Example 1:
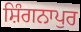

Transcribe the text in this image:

ਸ਼ਿੰਗਨਾਪੁਰ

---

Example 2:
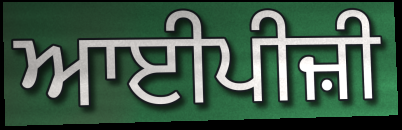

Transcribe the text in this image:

ਆਈਪੀਜ਼ੀ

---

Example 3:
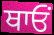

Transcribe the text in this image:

ਥਾਓਂ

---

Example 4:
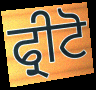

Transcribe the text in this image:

ਫ੍ਰੀਟੋ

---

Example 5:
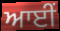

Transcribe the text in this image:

ਆਈਂ